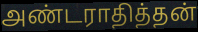
அண்டராதித்தன்